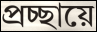
প্রচ্ছায়ে